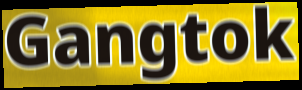
Gangtok